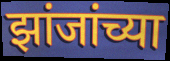
झांजांच्या